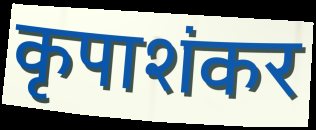
कृपाशंकर